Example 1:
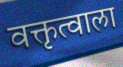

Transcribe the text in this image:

वक्तृत्वाला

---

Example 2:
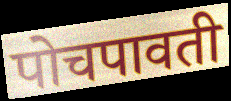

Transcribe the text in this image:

पोचपावती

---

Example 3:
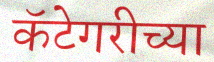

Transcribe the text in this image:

कॅटेगरीच्या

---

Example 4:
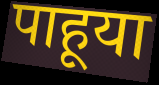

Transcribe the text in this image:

पाहूया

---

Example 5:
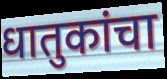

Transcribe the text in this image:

धातुकांचा